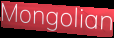
Mongolian